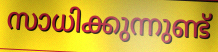
സാധിക്കുന്നുണ്ട്